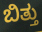
ಬಿತ್ತು